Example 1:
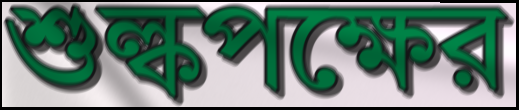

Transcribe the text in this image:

শুল্কপক্ষের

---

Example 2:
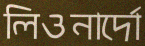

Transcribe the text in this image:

লিওনার্দো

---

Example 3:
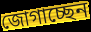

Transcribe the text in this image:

জোগাচ্ছেন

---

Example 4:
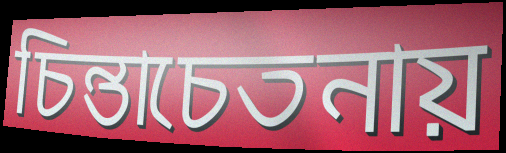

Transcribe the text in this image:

চিন্তাচেতনায়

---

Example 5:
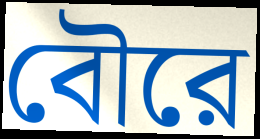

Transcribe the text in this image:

বৌরে